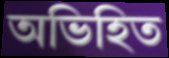
অভিহিত